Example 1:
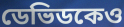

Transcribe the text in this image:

ডেভিডকেও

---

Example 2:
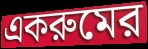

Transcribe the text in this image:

একরুমের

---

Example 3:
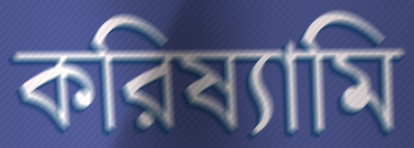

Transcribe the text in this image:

করিষ্যামি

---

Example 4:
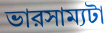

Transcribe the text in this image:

ভারসাম্যটা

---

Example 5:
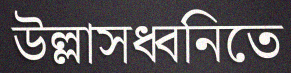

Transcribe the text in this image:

উল্লাসধ্বনিতে